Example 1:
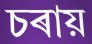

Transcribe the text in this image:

চৰায়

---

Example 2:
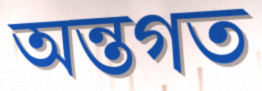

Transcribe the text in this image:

অন্তগত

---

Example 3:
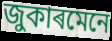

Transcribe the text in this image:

জুকাৰমেনে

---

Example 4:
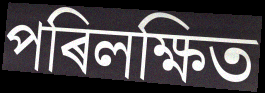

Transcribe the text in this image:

পৰিলক্ষিত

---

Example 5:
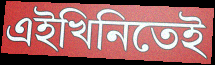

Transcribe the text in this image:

এইখিনিতেই